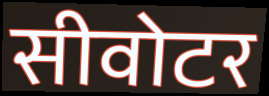
सीवोटर